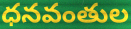
ధనవంతుల